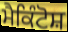
ਮੈਕਿੰਟੋਸ਼